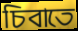
চিবাতে